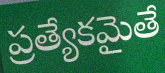
ప్రత్యేకమైతే